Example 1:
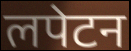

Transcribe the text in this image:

लपेटन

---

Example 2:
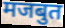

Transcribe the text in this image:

मजबुत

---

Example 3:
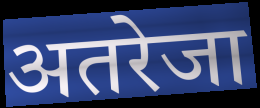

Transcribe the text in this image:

अतरेजा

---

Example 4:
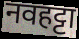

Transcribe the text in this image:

नवहट्टा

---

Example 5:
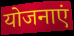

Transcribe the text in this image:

योजनाएं